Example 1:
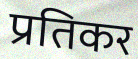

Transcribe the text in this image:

प्रतिकर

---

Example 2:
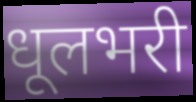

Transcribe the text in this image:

धूलभरी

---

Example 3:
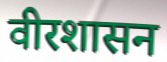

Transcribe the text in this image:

वीरशासन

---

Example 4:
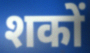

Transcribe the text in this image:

शकों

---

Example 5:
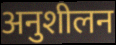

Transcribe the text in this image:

अनुशीलन